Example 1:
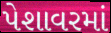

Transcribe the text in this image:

પેશાવરમાં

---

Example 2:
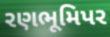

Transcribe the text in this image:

રણભૂમિપર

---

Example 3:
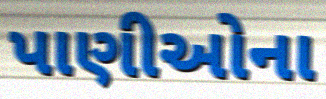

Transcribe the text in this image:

પાણીઓના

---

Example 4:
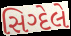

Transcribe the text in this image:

સિગ્દેલે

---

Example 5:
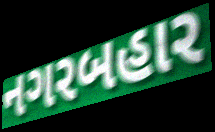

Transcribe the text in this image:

નગરબહાર